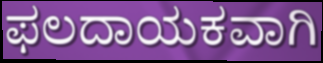
ಫಲದಾಯಕವಾಗಿ